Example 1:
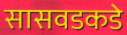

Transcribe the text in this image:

सासवडकडे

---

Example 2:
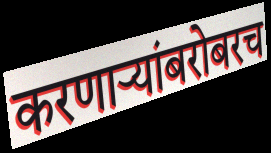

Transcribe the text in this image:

करणाऱ्यांबरोबरच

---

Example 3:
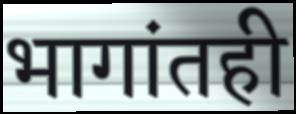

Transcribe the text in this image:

भागांतही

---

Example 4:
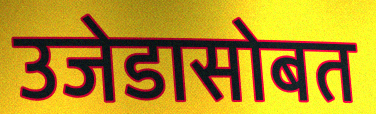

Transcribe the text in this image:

उजेडासोबत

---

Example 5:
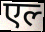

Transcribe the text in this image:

एल्‍